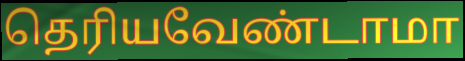
தெரியவேண்டாமா